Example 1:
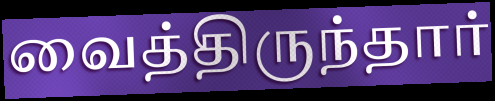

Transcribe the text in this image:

வைத்திருந்தார்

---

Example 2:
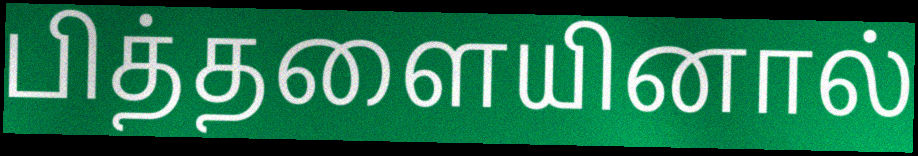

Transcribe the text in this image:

பித்தளையினால்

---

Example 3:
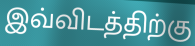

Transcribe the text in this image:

இவ்விடத்திற்கு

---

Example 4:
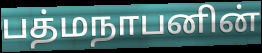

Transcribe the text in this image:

பத்மநாபனின்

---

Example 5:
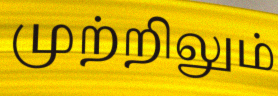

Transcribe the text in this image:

முற்றிலும்